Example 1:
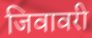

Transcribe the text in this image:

जिवावरी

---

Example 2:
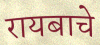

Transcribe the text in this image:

रायबाचे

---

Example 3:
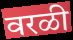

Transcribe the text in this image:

वरळी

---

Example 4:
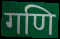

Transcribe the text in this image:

गणि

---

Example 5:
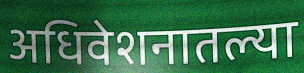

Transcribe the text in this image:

अधिवेशनातल्या